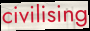
civilising